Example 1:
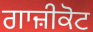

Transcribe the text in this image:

ਗਾਜ਼ੀਕੋਟ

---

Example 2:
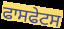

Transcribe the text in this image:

ਫਾਸਫੇਟਸ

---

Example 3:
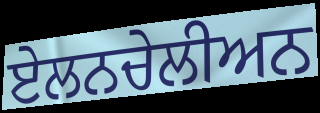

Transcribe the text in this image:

ਏਲਨਚੇਲੀਅਨ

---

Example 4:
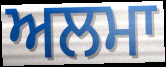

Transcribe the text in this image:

ਅਲਮਾ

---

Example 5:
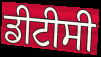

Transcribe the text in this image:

ਡੀਟੀਸੀ